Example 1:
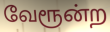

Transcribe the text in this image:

வேரூன்ற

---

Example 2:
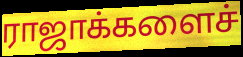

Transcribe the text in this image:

ராஜாக்களைச்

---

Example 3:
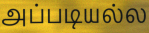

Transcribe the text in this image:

அப்படியல்ல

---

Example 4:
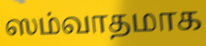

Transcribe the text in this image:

ஸம்வாதமாக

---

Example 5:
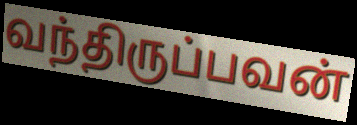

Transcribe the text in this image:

வந்திருப்பவன்